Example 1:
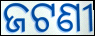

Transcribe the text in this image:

ଜଟଣୀ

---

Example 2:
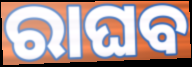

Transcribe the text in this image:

ରାଘବ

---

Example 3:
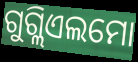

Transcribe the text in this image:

ଗୁଗ୍ଲିଏଲମୋ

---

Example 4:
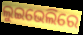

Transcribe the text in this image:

ଲୁଇଭେଲିରେ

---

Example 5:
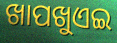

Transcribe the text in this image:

ଖାପଖୁଏଇ